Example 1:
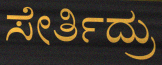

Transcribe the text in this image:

ಸೇರ್ತಿದ್ರು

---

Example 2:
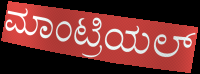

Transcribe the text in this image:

ಮಾಂಟ್ರಿಯಲ್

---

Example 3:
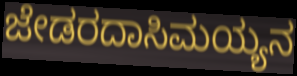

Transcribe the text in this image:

ಜೇಡರದಾಸಿಮಯ್ಯನ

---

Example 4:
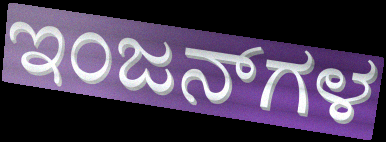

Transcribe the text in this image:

ಇಂಜನ್‌ಗಳ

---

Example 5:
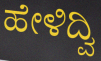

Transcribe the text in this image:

ಹೇಳಿದ್ವಿ